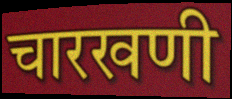
चारखणी